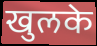
खुलके